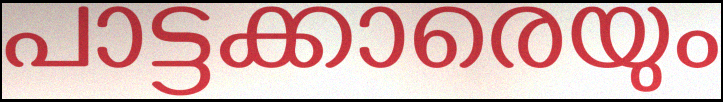
പാട്ടക്കാരെയും